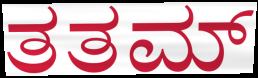
ತತಮ್